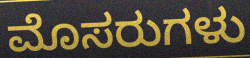
ಮೊಸರುಗಳು